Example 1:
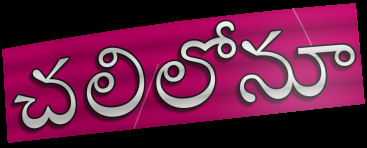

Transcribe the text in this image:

చలిలోనూ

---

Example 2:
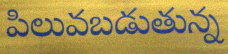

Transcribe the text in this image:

పిలువబడుతున్న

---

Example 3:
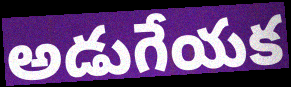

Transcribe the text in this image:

అడుగేయక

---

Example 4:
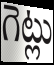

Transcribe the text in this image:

గెట్లు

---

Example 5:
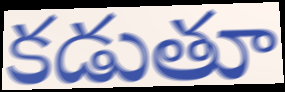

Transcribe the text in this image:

కడుతూ